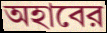
অহাবের